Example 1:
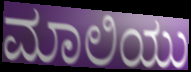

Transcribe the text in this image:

ಮಾಲಿಯು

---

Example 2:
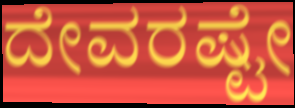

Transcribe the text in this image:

ದೇವರಷ್ಟೇ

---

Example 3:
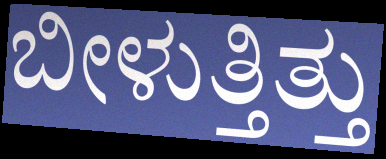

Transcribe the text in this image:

ಬೀಳುತ್ತಿತ್ತು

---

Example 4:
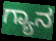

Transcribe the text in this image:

ಗ್ಯಾನ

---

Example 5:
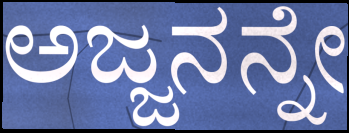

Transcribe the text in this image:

ಅಜ್ಜನನ್ನೇ